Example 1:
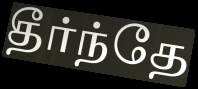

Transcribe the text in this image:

தீர்ந்தே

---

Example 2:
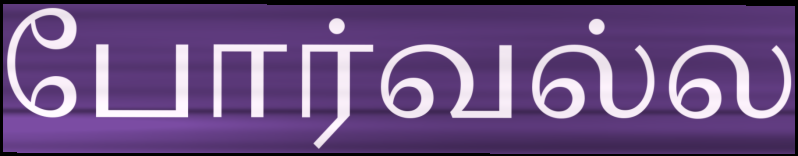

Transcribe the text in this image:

போர்வல்ல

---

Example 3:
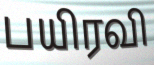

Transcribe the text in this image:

பயிரவி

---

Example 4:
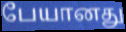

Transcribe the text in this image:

பேயானது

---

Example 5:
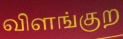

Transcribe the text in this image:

விளங்குற